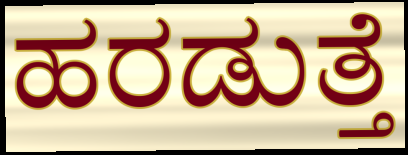
ಹರಡುತ್ತೆ